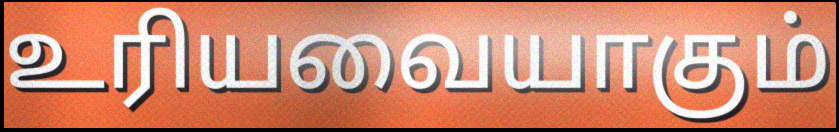
உரியவையாகும்